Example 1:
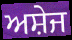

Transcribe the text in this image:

ਅਸ਼ੇਜ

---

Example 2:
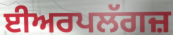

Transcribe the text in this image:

ਈਅਰਪਲੱਗਜ਼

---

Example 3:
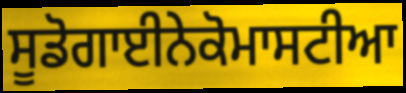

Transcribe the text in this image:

ਸੂਡੋਗਾਈਨੇਕੋਮਾਸਟੀਆ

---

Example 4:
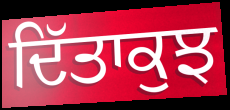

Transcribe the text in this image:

ਦਿੱਤਾਕੁਝ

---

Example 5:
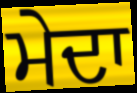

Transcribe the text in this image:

ਮੇਦਾ